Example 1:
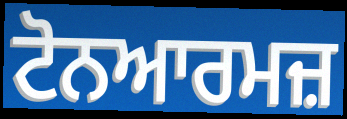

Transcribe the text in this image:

ਟੋਨਆਰਮਜ਼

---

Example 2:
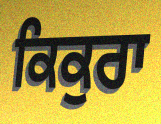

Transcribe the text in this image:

ਕਿਕੁਰਾ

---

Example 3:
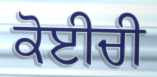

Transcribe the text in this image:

ਕੋਈਚੀ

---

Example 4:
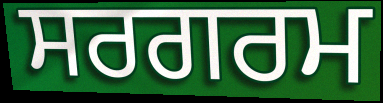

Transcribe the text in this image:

ਸਰਗਰਮ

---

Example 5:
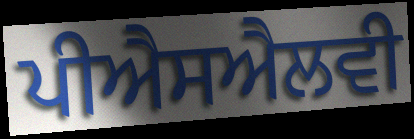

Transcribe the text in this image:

ਪੀਐਸਐਲਵੀ